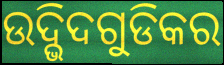
ଉଦ୍ଭିଦଗୁଡିକର